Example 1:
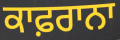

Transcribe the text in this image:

ਕਾਫ਼ਰਾਨਾ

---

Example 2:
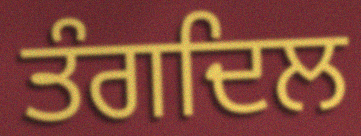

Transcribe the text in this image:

ਤੰਗਦਿਲ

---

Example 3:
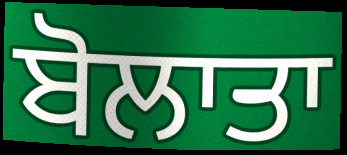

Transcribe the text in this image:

ਬੋਲਾਤਾ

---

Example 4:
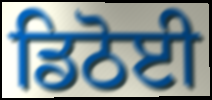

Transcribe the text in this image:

ਡਿਠੋਈ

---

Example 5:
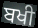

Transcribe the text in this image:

ਬਖੀ